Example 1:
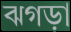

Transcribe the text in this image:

ঝগড়া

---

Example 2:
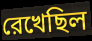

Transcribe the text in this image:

রেখেছিল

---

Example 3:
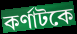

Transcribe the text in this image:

কর্ণাটকে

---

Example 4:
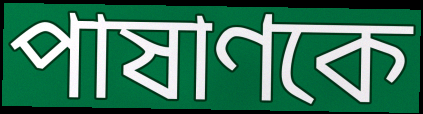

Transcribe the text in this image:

পাষাণকে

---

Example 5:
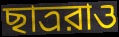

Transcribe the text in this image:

ছাত্ররাও